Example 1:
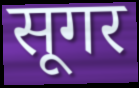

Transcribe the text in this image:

सूगर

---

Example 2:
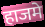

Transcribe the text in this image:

हाजमे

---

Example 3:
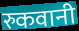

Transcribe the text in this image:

रुकवानी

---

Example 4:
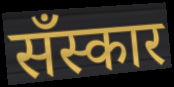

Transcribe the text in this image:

सँस्कार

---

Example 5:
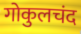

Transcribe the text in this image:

गोकुलचंद